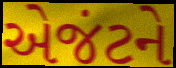
એજંટને